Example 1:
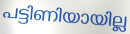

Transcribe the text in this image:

പട്ടിണിയായില്ല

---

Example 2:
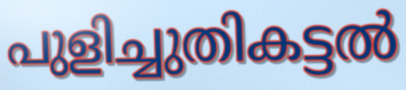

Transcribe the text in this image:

പുളിച്ചുതികട്ടൽ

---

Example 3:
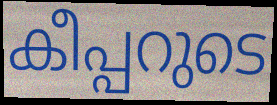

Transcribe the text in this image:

കീപ്പറുടെ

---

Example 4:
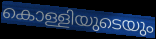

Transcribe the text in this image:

കൊള്ളിയുടെയും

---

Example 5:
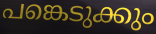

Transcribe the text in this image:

പങ്കെടുക്കും